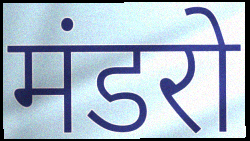
मंडरो